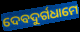
ଦେବଦୁର୍ଗଧାମେ